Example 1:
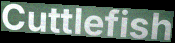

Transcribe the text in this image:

Cuttlefish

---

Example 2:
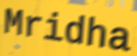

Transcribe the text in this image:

Mridha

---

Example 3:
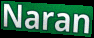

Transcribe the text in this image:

Naran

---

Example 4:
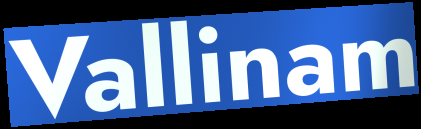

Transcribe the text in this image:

Vallinam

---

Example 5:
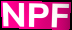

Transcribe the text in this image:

NPF